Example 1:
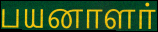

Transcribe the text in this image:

பயனாளர்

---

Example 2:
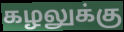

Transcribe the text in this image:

கழலுக்கு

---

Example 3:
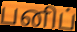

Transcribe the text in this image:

பனிப்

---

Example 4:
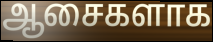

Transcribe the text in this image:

ஆசைகளாக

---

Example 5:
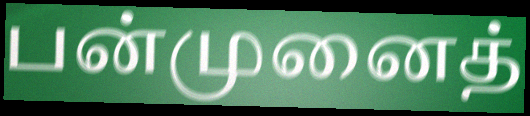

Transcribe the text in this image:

பன்முனைத்